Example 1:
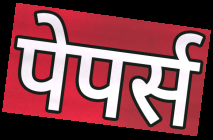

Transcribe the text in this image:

पेपर्स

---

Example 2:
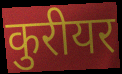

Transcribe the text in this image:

कुरीयर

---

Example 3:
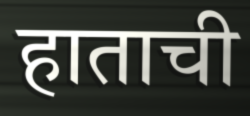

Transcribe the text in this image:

हाताची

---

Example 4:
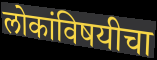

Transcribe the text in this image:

लोकांविषयीचा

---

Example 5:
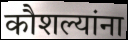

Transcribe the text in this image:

कौशल्यांना